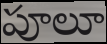
పూలూ